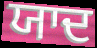
ਯਾਦ